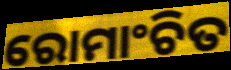
ରୋମାଂଚିତ